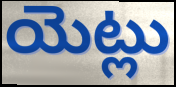
యెట్లు